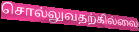
சொல்லுவதற்கில்லை